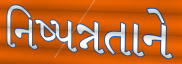
નિષ્પન્નતાને